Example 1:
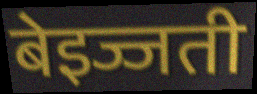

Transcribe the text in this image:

बेइज्जती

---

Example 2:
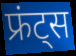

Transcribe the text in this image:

फ्रंट्स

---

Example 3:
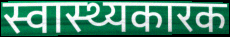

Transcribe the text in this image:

स्वास्थ्यकारक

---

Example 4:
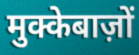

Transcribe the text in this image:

मुक्केबाज़ों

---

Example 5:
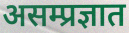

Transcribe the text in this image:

असम्प्रज्ञात